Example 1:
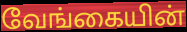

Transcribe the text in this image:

வேங்கையின்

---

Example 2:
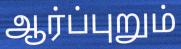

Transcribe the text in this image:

ஆர்ப்புறும்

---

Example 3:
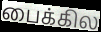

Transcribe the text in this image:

பைக்கில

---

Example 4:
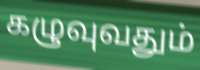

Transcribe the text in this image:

கழுவுவதும்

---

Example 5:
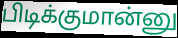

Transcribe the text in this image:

பிடிக்குமான்னு